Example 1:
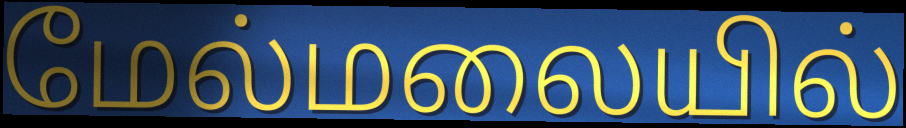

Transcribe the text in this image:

மேல்மலையில்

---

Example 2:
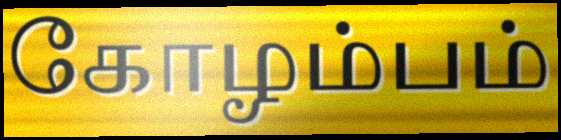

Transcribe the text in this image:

கோழம்பம்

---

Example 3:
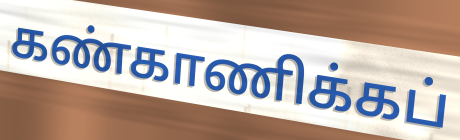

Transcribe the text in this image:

கண்காணிக்கப்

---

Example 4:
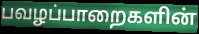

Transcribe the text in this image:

பவழப்பாறைகளின்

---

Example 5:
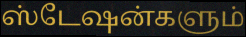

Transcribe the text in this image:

ஸ்டேஷன்களும்